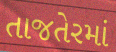
તાજતેરમાં